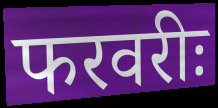
फरवरीः